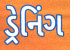
ડ્રેનિંગ